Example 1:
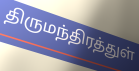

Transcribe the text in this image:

திருமந்திரத்துள்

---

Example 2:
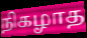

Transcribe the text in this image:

நிகழாத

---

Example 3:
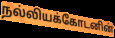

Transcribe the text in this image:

நல்லியக்கோடனின்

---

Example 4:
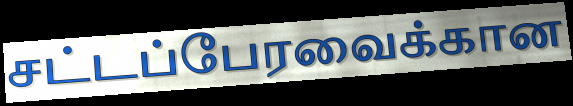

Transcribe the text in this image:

சட்டப்பேரவைக்கான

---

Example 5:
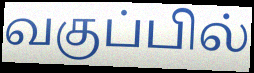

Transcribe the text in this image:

வகுப்பில்